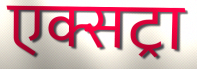
एक्सट्रा